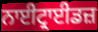
ਨਾਈਟ੍ਰਾਈਡਜ਼